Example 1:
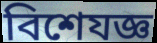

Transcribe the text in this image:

বিশেযজ্ঞ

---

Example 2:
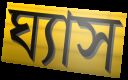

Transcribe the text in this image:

ঘ্যাস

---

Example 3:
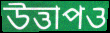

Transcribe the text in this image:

উত্তাপও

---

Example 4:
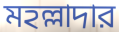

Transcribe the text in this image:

মহল্লাদার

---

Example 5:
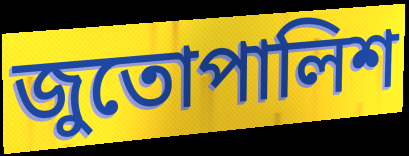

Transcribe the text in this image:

জুতোপালিশ